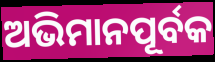
ଅଭିମାନପୂର୍ବକ